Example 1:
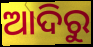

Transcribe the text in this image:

ଆଦିରୁ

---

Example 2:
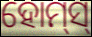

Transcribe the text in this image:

ହୋମ୍‌ସ୍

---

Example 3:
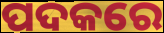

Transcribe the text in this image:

ପଦକରେ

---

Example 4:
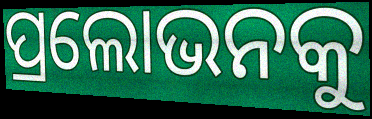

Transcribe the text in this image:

ପ୍ରଲୋଭନକୁ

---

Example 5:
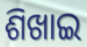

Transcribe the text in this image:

ଶିଖାଇ